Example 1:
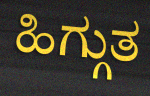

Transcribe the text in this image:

ಹಿಗ್ಗುತ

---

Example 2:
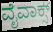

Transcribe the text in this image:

ವೈವಾಕ್ಸ್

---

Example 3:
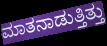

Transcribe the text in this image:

ಮಾತನಾಡುತ್ತಿತ್ತು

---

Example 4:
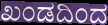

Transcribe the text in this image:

ಖಂಡದಿಂದ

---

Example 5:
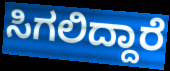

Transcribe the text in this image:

ಸಿಗಲಿದ್ದಾರೆ